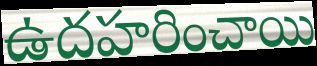
ఉదహరించాయి